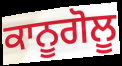
ਕਾਨੂਗੋਲੂ